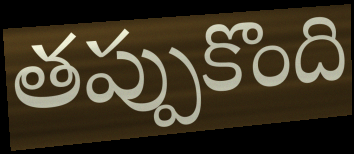
తప్పుకొంది